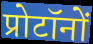
प्रोटॉनों